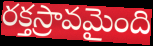
రక్తస్రావమైంది